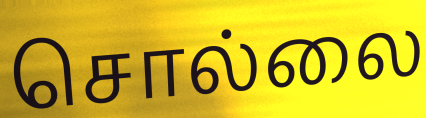
சொல்லை